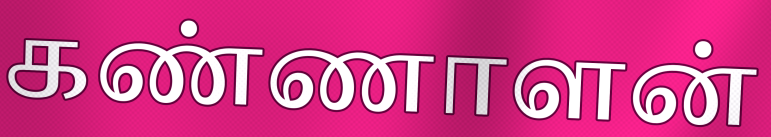
கண்ணாளன்